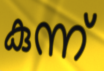
കുന്ന്